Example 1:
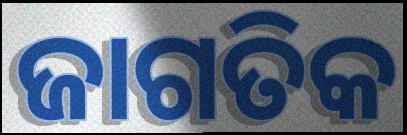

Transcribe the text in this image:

ଜାଗତିକ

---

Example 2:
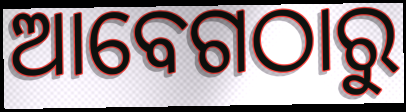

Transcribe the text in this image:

ଆବେଗଠାରୁ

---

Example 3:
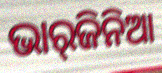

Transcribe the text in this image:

ଭାର୍‌ଜିନିଆ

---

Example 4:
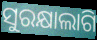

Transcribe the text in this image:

ସୁରକ୍ଷାଲାଗି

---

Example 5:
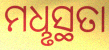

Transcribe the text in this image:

ମଧୢସ୍ଥତା